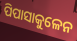
ପିପାସାକୁଳେନ